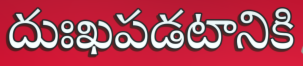
దుఃఖపడటానికి